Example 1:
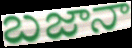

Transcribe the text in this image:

బజానా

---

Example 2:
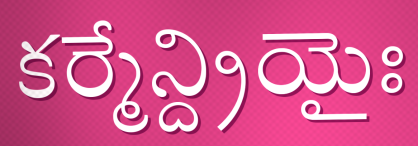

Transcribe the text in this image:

కర్మేన్ద్రియైః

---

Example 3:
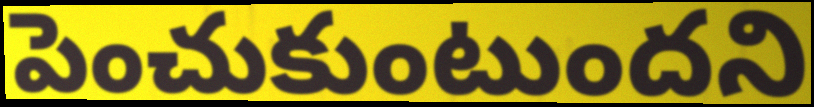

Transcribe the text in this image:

పెంచుకుంటుందని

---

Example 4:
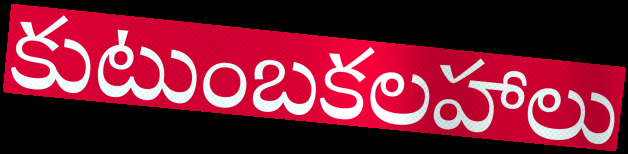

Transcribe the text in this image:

కుటుంబకలహాలు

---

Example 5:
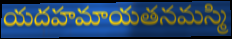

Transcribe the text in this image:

యదహమాయతనమస్మి